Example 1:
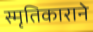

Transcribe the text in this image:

स्मृतिकाराने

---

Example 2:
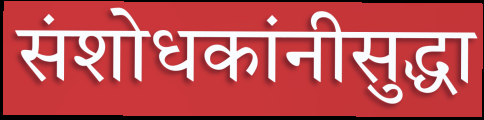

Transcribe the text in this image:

संशोधकांनीसुद्धा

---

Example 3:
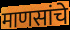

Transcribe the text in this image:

माणसांचे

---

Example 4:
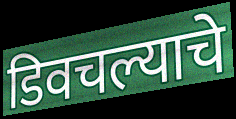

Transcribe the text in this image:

डिवचल्याचे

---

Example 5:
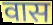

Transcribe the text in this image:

वास